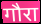
गौरा